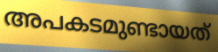
അപകടമുണ്ടായത്